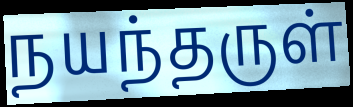
நயந்தருள்